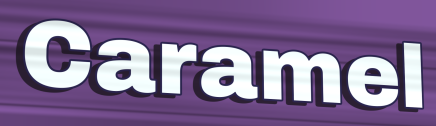
Caramel